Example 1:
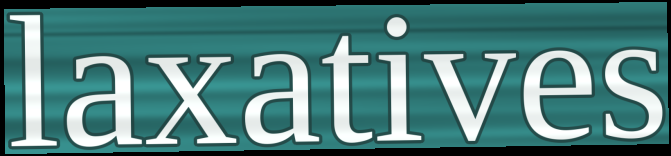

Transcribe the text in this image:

laxatives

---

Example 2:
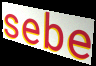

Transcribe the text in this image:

sebe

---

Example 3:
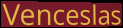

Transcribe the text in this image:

Venceslas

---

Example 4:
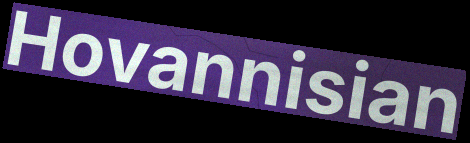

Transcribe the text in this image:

Hovannisian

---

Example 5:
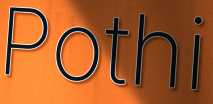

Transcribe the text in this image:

Pothi